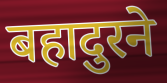
बहादुरने